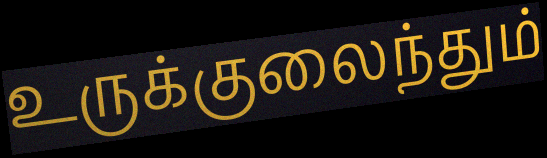
உருக்குலைந்தும்